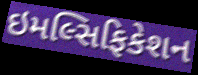
ઇમલ્સિફિકેશન